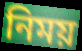
নিময়